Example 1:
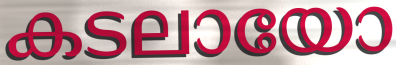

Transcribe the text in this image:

കടലായോ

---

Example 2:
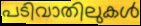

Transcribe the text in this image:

പടിവാതിലുകൾ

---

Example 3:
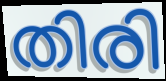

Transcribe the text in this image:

തിരി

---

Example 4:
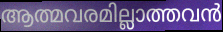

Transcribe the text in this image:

ആത്മവരമില്ലാത്തവൻ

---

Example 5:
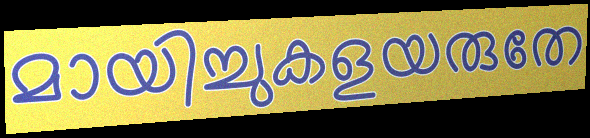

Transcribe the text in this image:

മായിച്ചുകളയരുതേ